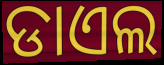
ଡାଏଲ